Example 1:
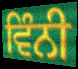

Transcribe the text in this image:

ਵਿੰਨੀ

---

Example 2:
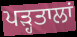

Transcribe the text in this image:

ਪੜ੍ਹਤਾਲਾਂ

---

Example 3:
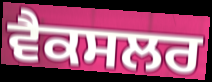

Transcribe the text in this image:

ਵੈਕਸਲਰ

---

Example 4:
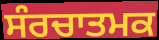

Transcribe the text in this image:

ਸੰਰਚਾਤਮਕ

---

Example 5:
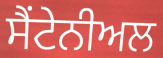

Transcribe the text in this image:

ਸੈਂਟੇਨੀਅਲ